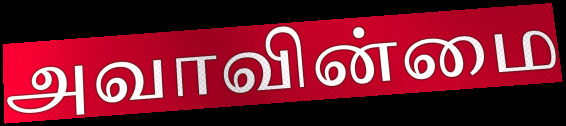
அவாவின்மை